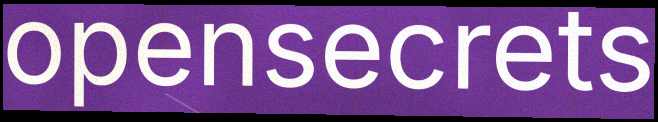
opensecrets